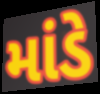
માંડે